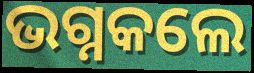
ଭଗ୍ନକଲେ